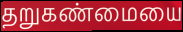
தறுகண்மையை